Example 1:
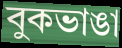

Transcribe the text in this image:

বুকভাঙা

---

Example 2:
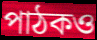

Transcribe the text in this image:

পাঠকও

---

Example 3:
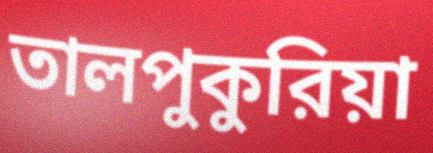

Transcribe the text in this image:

তালপুকুরিয়া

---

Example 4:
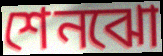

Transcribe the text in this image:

শেনঝো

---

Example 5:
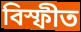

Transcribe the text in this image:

বিস্ফীত